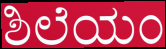
ಶಿಲೆಯಂ